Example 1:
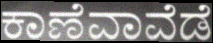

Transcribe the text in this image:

ಕಾಣೆವಾವೆಡೆ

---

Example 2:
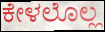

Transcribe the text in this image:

ಕೇಳಲೊಲ್ಲ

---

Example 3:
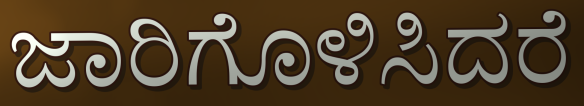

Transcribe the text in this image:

ಜಾರಿಗೊಳಿಸಿದರೆ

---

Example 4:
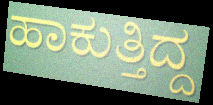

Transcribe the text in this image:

ಹಾಕುತ್ತಿದ್ದ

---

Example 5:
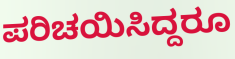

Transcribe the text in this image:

ಪರಿಚಯಿಸಿದ್ದರೂ